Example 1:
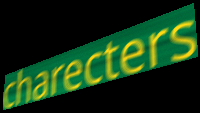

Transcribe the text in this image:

charecters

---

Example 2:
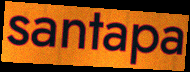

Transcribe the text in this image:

santapa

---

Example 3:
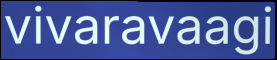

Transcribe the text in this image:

vivaravaagi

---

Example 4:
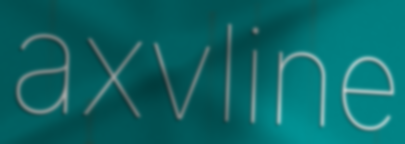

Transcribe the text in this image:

axvline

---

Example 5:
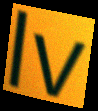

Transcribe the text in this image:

Iv